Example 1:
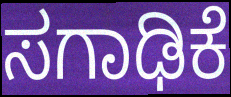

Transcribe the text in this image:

ಸಗಾಢಿಕೆ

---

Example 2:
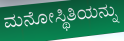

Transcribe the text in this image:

ಮನೋಸ್ಥಿತಿಯನ್ನು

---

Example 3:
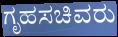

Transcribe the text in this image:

ಗೃಹಸಚಿವರು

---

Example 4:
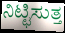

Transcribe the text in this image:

ನಿಟ್ಟಿಸುತ್ತ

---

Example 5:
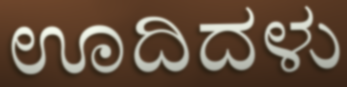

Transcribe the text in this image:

ಊದಿದಳು